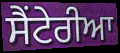
ਸੈਂਟੇਰੀਆ